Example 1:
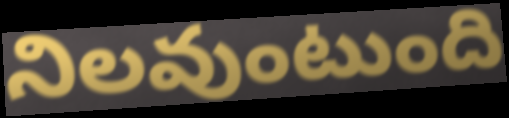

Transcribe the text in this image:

నిలవుంటుంది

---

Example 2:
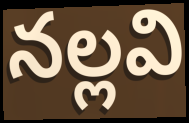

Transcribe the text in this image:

నల్లవి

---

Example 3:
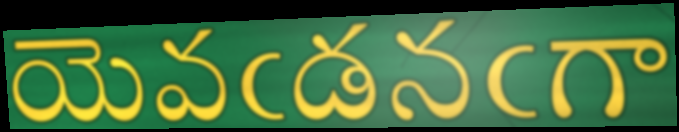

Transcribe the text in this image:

యెవఁడనఁగా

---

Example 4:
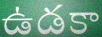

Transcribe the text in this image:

ఉడకా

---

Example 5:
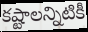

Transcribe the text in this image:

కష్టాలన్నిటికీ